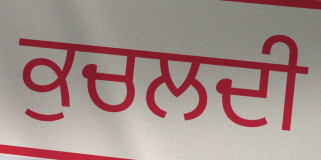
ਕੁਚਲਦੀ